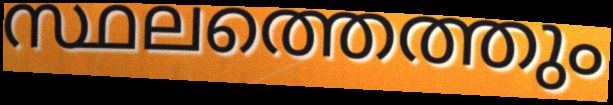
സ്ഥലത്തെത്തും